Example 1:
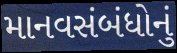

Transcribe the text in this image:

માનવસંબંધોનું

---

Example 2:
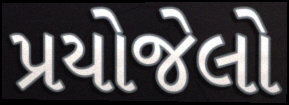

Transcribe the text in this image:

પ્રયોજેલો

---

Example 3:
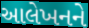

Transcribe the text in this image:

આલેખનને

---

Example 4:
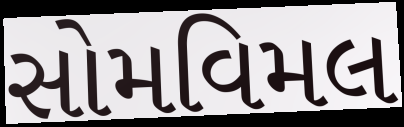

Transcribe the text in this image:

સોમવિમલ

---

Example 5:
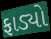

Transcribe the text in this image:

ફાડ્યો